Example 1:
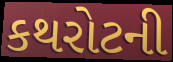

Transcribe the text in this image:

કથરોટની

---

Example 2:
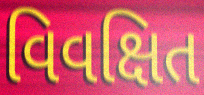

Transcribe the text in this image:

વિવક્ષિત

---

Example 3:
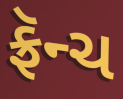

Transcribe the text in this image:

ફ્રૅન્ચ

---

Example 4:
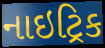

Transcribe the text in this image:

નાઇટ્રિક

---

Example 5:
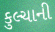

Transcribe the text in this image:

કુલ્ચાની